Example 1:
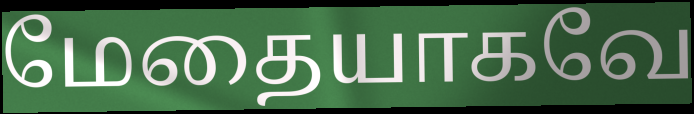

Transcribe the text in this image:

மேதையாகவே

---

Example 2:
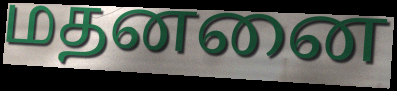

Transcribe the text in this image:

மதனனை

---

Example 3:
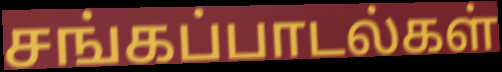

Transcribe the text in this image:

சங்கப்பாடல்கள்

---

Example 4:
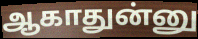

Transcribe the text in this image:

ஆகாதுன்னு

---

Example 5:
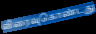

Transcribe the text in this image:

விரைவுகொண்டது